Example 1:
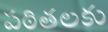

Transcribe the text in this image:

పఠితలకు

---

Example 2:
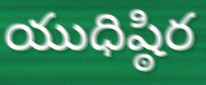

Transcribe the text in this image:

యుధిష్ఠిర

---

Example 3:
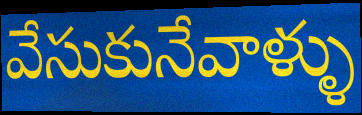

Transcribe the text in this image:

వేసుకునేవాళ్ళు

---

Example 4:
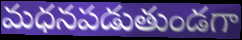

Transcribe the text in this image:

మధనపడుతుండగా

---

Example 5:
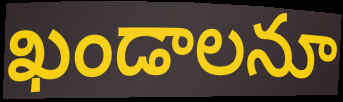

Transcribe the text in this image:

ఖండాలనూ